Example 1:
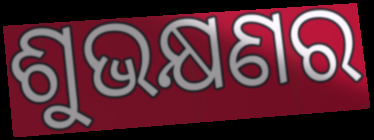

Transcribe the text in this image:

ଶୁଭକ୍ଷଣର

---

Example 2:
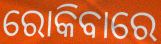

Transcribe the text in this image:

ରୋକିବାରେ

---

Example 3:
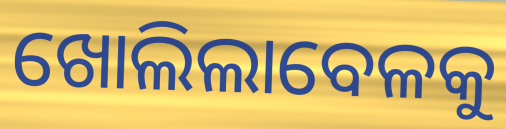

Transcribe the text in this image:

ଖୋଲିଲାବେଳକୁ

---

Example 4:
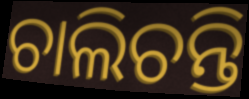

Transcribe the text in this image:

ଚାଲିଚନ୍ତି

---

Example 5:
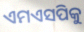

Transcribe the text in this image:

ଏମଏସପିକୁ